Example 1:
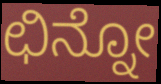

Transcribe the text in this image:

ಛಿನ್ನೋ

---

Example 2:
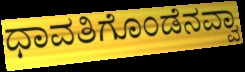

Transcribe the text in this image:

ಧಾವತಿಗೊಂಡೆನವ್ವಾ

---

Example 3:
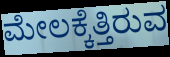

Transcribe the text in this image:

ಮೇಲಕ್ಕೆತ್ತಿರುವ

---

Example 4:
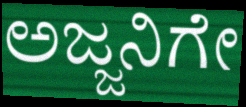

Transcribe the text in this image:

ಅಜ್ಜನಿಗೇ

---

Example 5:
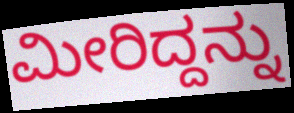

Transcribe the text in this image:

ಮೀರಿದ್ದನ್ನು